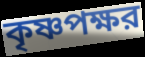
কৃষ্ণপক্ষর